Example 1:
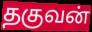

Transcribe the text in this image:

தகுவன்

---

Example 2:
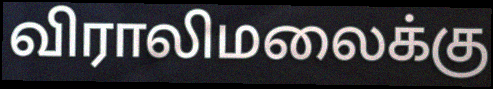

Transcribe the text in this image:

விராலிமலைக்கு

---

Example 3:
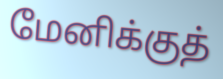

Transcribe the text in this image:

மேனிக்குத்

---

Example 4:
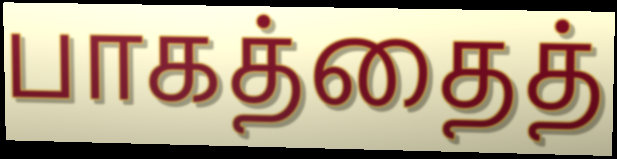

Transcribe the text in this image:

பாகத்தைத்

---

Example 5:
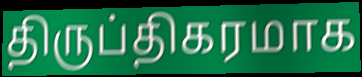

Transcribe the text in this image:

திருப்திகரமாக